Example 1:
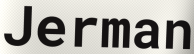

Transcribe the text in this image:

Jerman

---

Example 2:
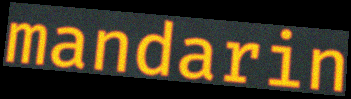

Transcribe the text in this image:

mandarin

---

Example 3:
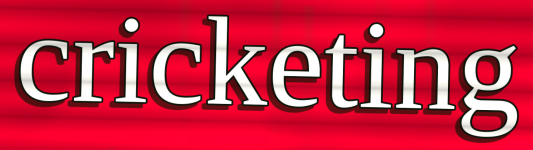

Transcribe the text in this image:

cricketing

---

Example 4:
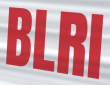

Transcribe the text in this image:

BLRI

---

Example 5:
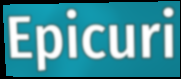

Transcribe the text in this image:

Epicuri